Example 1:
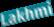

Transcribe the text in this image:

Lakhmi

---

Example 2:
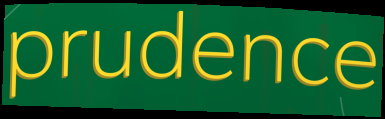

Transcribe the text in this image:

prudence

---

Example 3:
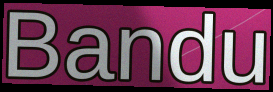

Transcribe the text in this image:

Bandu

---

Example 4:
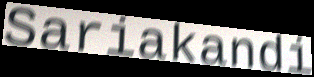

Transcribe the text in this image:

Sariakandi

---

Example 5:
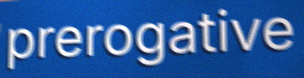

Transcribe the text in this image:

prerogative